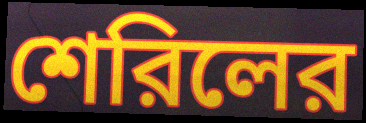
শেরিলের